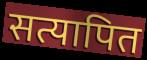
सत्यापित